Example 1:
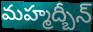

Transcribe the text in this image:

మహ్మద్బీన్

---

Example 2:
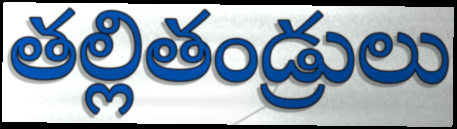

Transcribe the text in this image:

తల్లితండ్రులు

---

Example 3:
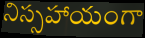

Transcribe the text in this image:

నిస్సహాయంగా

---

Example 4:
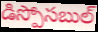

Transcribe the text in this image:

డిస్పోసబుల్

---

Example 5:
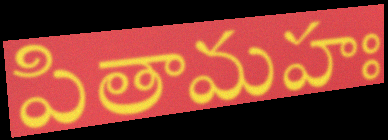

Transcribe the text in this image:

పితామహః